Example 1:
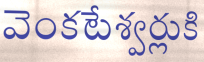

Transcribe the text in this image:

వెంకటేశ్వర్లుకి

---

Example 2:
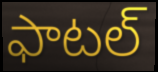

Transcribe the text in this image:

ఫాటల్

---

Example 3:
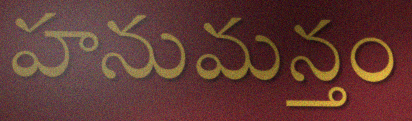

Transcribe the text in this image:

హనుమన్తం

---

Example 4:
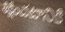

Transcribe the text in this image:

శిక్షించటానికి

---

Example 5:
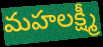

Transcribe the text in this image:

మహలక్ష్మీ